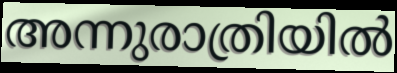
അന്നുരാത്രിയിൽ